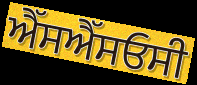
ਐੱਸਐੱਸਓਸੀ